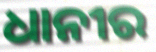
ଧାନୀର